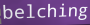
belching